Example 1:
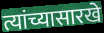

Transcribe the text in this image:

त्यांच्यासारखे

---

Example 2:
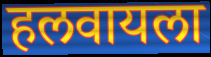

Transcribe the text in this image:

हलवायला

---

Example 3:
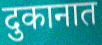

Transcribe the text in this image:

दुकानात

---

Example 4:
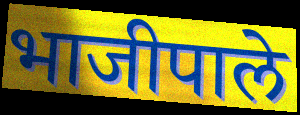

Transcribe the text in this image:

भाजीपाले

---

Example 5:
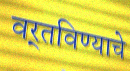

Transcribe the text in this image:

वर्तविण्याचे